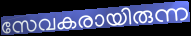
സേവകരായിരുന്ന